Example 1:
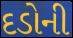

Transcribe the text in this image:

દડોની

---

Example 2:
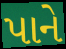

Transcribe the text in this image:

પાને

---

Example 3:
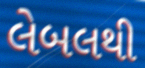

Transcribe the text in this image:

લેબલથી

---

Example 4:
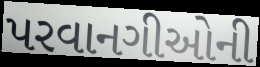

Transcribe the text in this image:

પરવાનગીઓની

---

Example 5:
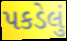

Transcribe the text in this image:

પકડેલું